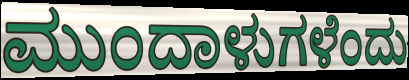
ಮುಂದಾಳುಗಳೆಂದು